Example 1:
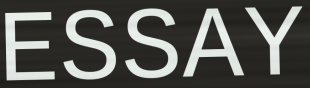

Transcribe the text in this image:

ESSAY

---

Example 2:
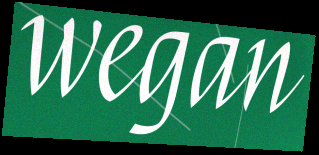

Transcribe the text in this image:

wegan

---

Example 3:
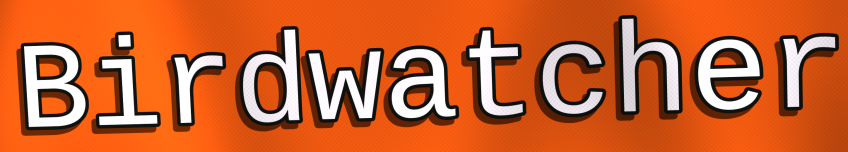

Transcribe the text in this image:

Birdwatcher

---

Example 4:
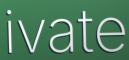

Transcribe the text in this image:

ivate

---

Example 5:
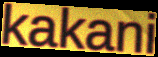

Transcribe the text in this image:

kakani